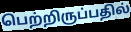
பெற்றிருப்பதில்